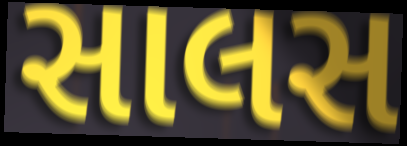
સાલસ